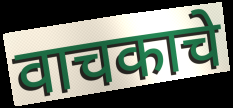
वाचकाचे